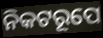
ନିକଟରୂପେ